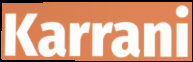
Karrani